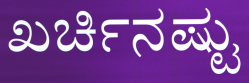
ಖರ್ಚಿನಷ್ಟು